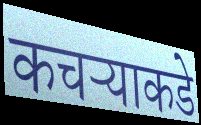
कचऱ्याकडे